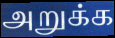
அறுக்க